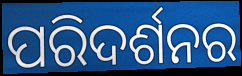
ପରିଦର୍ଶନର